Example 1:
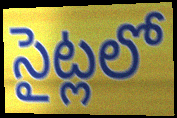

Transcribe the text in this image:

సైట్లలో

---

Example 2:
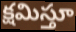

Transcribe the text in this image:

క్షమిస్తూ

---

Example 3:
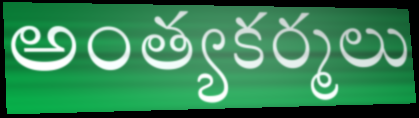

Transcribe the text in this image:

అంత్యకర్మలు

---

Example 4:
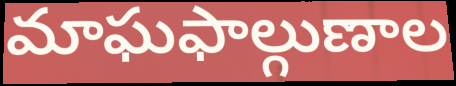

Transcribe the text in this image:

మాఘఫాల్గుణాల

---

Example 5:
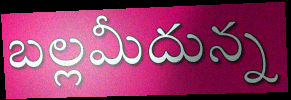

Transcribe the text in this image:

బల్లమీదున్న